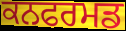
ਕਨਫਰਮਡ